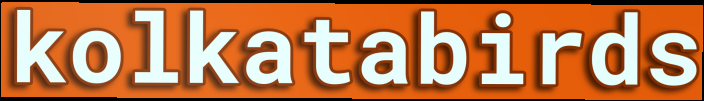
kolkatabirds